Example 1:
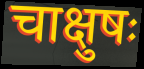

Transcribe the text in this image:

चाक्षुषः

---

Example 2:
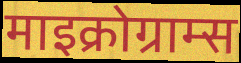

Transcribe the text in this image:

माइक्रोग्राम्स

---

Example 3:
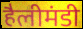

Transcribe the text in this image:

हैलीमंडी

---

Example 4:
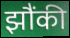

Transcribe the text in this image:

झौंकी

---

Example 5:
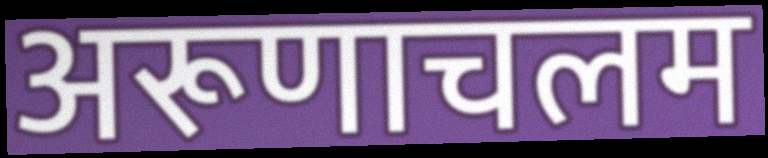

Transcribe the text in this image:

अरूणाचलम